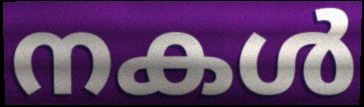
നകൾ